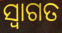
ସ୍ୱାଗତ